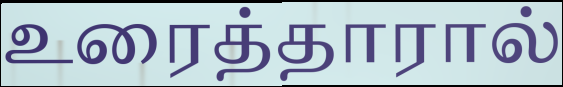
உரைத்தாரால்